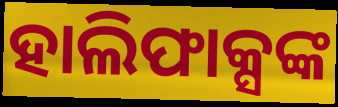
ହାଲିଫାକ୍ସଙ୍କ